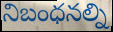
నిబంధనల్ని